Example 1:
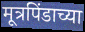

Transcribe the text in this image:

मूत्रपिंडाच्या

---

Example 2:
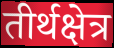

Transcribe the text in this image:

तीर्थक्षेत्र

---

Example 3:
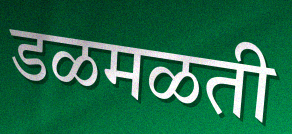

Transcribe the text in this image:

डळमळती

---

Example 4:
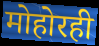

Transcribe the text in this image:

मोहोरही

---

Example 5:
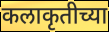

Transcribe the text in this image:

कलाकृतीच्या